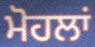
ਮੋਹਲਾਂ